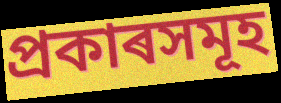
প্ৰকাৰসমূহ